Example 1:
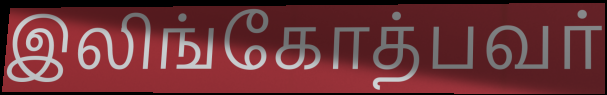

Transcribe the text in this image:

இலிங்கோத்பவர்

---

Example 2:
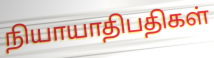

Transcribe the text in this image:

நியாயாதிபதிகள்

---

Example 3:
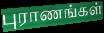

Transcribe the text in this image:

புராணங்கள்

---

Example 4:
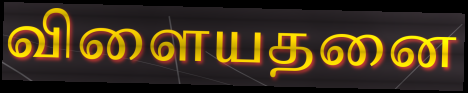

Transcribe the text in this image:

விளையதனை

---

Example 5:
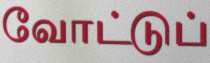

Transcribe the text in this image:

வோட்டுப்